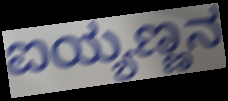
ಐಯ್ಯಣ್ಣನ